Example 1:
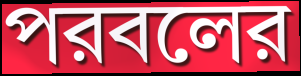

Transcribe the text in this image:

পরবলের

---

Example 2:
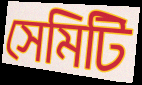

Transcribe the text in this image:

সেমিটি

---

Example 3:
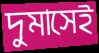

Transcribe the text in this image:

দুমাসেই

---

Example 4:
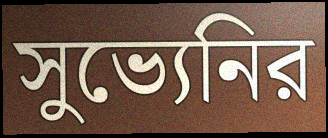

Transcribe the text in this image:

সুভ্যেনির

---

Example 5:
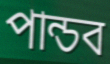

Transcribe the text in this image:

পান্ডব